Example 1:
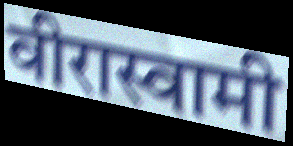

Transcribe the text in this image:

वीरास्वामी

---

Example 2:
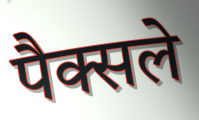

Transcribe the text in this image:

पैक्सले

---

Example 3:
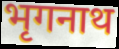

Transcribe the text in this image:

भृगनाथ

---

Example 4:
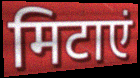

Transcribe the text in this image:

मिटाएं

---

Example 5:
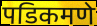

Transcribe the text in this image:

पडिकमणे